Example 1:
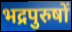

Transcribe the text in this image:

भद्रपुरुषों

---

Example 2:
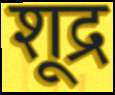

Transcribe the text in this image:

शूद्र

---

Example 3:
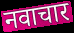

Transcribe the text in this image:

नवाचार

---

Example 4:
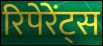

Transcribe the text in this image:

रिपेरेंट्स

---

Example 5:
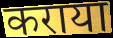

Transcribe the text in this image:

कराया